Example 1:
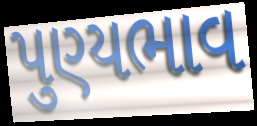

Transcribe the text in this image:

પુણ્યભાવ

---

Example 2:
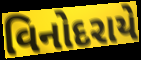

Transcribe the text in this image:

વિનોદરાયે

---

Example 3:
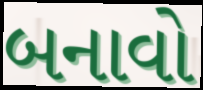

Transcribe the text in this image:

બનાવો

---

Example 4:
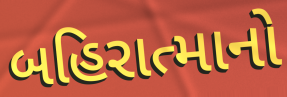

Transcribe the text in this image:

બહિરાત્માનો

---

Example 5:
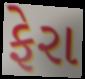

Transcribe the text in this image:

ફેરા